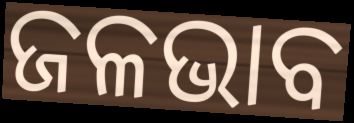
ଜଳଭାବ